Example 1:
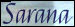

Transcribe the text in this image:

Sarana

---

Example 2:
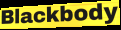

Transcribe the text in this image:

Blackbody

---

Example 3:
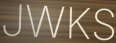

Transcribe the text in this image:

JWKS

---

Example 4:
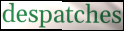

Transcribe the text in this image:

despatches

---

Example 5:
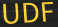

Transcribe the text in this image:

UDF